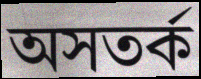
অসতর্ক